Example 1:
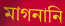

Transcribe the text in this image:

মাগনানি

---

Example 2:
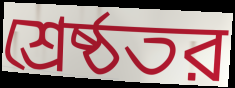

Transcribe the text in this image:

শ্রেষ্ঠতর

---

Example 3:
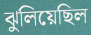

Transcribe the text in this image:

ঝুলিয়েছিল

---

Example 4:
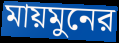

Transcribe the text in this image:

মায়মুনের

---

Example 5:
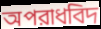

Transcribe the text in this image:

অপরাধবিদ